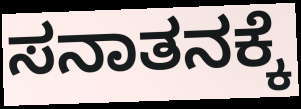
ಸನಾತನಕ್ಕೆ